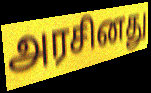
அரசினது